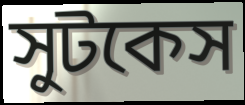
সুটকেস